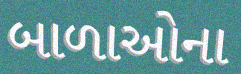
બાળાઓના